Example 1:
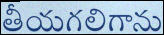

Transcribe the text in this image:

తీయగలిగాను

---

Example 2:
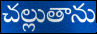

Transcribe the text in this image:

చల్లుతాను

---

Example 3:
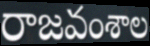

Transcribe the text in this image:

రాజవంశాల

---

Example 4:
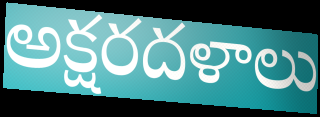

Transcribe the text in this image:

అక్షరదళాలు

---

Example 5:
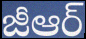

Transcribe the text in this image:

జీఆర్